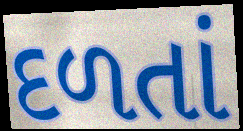
દળતાં